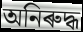
অনিৰুদ্ধ